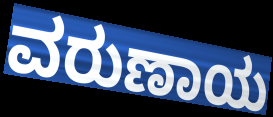
ವರುಣಾಯ